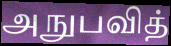
அநுபவித்